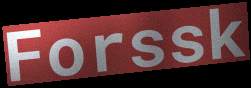
Forssk